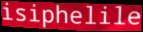
isiphelile